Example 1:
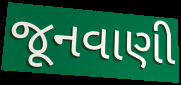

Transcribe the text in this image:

જૂનવાણી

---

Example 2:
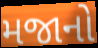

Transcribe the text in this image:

મજાનો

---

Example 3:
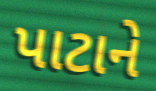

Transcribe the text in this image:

પાટાને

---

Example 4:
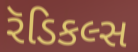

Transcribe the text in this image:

રૅડિકલ્સ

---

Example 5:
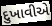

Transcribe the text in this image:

દુખાવીએ